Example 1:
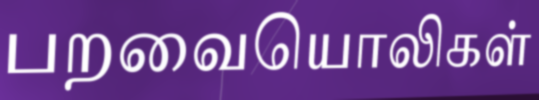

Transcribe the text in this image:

பறவையொலிகள்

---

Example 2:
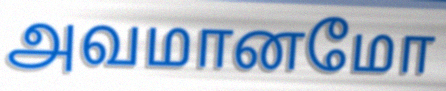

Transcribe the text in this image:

அவமானமோ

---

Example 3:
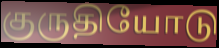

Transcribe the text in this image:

குருதியோடு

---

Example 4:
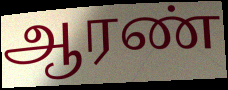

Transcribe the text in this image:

ஆரண்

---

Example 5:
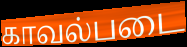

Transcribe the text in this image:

காவல்படை